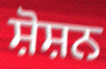
ਸ਼ੋਸ਼ਨ